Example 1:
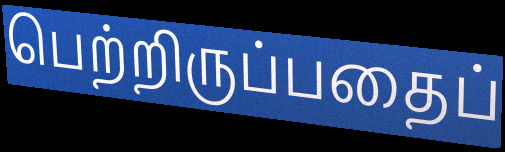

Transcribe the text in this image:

பெற்றிருப்பதைப்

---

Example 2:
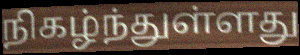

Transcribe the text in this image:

நிகழ்ந்துள்ளது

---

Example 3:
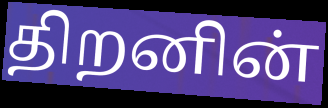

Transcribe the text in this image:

திறனின்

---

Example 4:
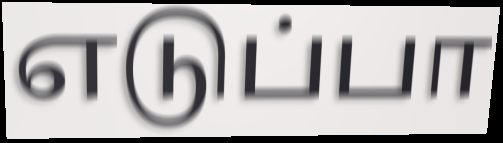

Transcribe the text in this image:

எடுப்பா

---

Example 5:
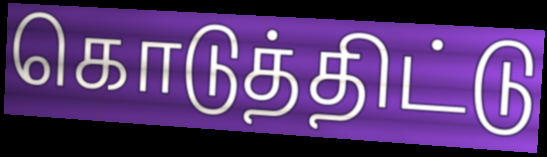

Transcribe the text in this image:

கொடுத்திட்டு